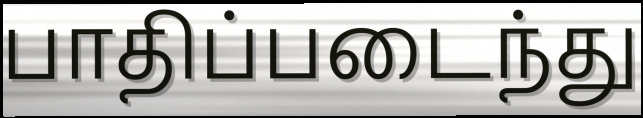
பாதிப்படைந்து